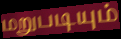
மறுபடியும்